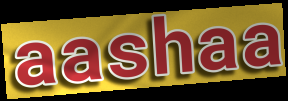
aashaa